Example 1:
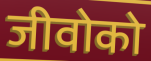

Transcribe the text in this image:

जीवोको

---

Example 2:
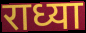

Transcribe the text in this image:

राध्या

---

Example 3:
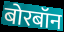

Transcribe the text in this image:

बोरबॉन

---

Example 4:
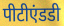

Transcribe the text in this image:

पीटीएंडडी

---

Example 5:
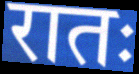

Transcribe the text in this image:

रातः